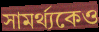
সামর্থ্যকেও